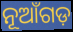
ନୂଆଁଗଡ଼